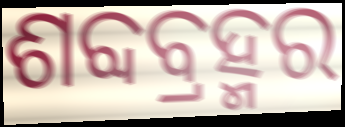
ଶବ୍ଦବ୍ରହ୍ମର